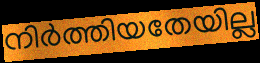
നിർത്തിയതേയില്ല